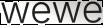
wewe